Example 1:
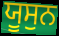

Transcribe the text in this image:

ਯੂਸੁਨ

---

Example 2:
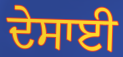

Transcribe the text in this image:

ਦੇਸਾਈ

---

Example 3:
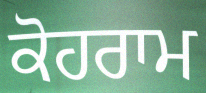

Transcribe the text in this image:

ਕੋਹਰਾਮ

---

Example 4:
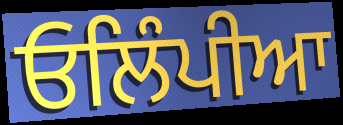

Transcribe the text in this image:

ਓਲਿੰਪੀਆ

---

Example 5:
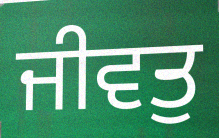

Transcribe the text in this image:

ਜੀਵਤੁ